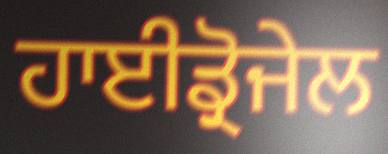
ਹਾਈਡ੍ਰੋਜੇਲ